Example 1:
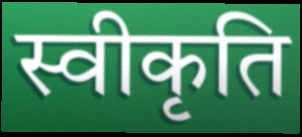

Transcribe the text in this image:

स्‍वीकृति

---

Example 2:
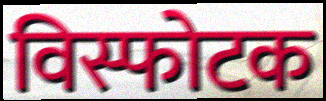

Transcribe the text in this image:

विस्फोटक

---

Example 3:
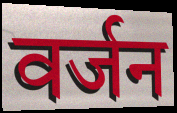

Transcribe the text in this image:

वर्जन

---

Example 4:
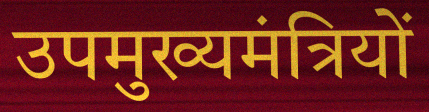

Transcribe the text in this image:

उपमुख्यमंत्रियों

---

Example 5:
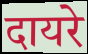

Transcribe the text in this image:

दायरे